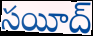
సయీద్